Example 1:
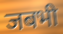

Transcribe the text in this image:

जबभी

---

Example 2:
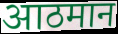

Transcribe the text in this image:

आठमान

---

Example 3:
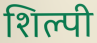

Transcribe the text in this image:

शिल्‍पी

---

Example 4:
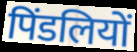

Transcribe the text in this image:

पिंडलियों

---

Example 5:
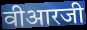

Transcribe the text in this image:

वीआरजी